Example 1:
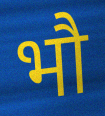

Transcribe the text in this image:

भौ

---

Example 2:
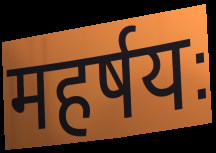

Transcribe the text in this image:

महर्षयः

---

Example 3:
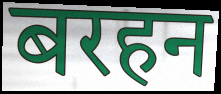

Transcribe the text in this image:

बरहन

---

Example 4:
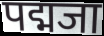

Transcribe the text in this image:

पद्मजा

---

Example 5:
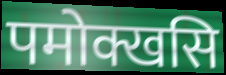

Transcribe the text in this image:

पमोक्खसि